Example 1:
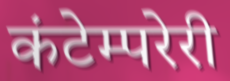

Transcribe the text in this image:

कंटेम्परेरी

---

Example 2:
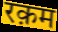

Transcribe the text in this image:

रक़म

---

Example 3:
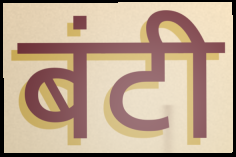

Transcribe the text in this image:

बंटी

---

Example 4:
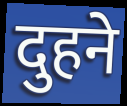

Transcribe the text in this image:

दुहने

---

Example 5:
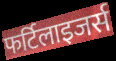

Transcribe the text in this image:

फर्टिलाइजर्स